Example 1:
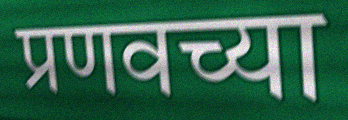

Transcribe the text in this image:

प्रणवच्या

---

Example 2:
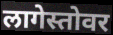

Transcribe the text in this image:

लागेस्तोवर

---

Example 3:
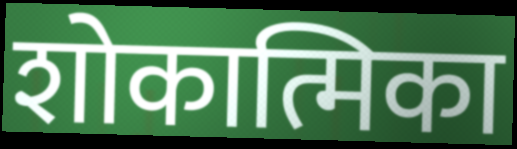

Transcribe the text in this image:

शोकात्मिका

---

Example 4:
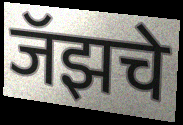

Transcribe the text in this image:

जॅझचे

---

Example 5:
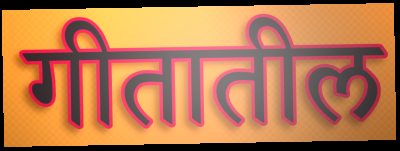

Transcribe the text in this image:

गीतातील